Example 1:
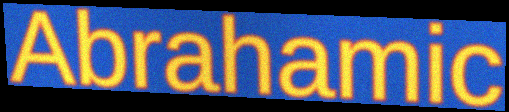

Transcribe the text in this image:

Abrahamic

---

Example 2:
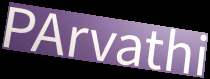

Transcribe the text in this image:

PArvathi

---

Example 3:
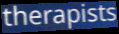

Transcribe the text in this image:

therapists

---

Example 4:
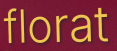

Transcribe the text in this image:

florat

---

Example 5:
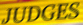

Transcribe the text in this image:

JUDGES